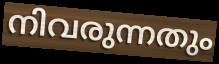
നിവരുന്നതും